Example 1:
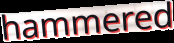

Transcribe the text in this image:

hammered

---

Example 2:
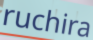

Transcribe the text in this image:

ruchira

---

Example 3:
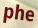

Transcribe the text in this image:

phe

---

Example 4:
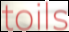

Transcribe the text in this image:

toils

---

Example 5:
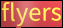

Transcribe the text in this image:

flyers